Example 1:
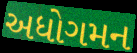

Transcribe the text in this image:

અધોગમન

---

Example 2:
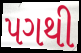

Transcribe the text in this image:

પગથી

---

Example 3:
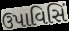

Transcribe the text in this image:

ઉપાવિસિં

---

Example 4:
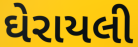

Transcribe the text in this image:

ઘેરાયલી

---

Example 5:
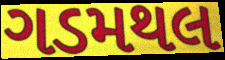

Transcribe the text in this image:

ગડમથલ